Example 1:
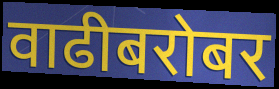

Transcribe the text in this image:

वाढीबरोबर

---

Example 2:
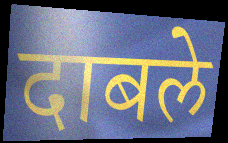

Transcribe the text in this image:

दाबले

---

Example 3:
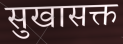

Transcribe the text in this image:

सुखासक्त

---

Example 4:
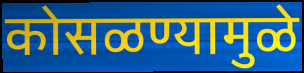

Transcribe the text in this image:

कोसळण्यामुळे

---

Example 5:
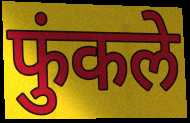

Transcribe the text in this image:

फुंकले